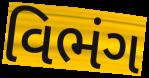
વિભંગ